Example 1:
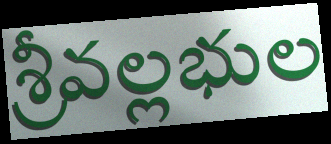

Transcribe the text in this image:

శ్రీవల్లభుల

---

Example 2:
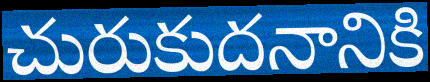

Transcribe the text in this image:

చురుకుదనానికి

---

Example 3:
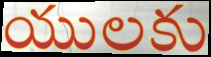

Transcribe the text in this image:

యులకు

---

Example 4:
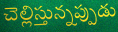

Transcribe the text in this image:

చెల్లిస్తున్నప్పుడు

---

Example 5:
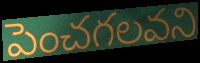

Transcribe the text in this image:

పెంచగలవని